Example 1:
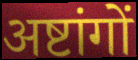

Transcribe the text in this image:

अष्टांगों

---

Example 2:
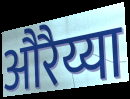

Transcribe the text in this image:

औरैय्या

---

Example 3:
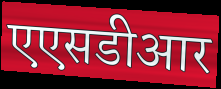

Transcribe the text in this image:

एएसडीआर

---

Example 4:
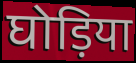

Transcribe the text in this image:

घोड़िया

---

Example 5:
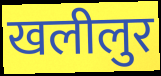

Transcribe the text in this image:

खलीलुर